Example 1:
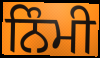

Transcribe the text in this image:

ਨਿੰਮੀ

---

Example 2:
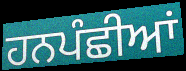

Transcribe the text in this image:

ਹਨਪੰਛੀਆਂ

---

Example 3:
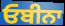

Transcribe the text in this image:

ਓਬੀਨਾ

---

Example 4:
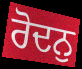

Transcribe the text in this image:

ਰੋਦਨੁ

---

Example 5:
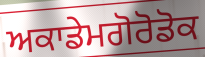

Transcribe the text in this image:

ਅਕਾਡੇਮਗੋਰੋਡੋਕ